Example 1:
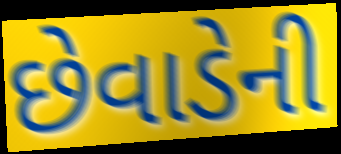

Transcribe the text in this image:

છેવાડેની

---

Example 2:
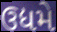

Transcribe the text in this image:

ઉદ્યમે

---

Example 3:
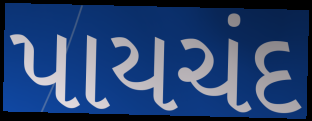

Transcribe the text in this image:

પાયચંદ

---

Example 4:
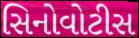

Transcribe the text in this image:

સિનોવોટીસ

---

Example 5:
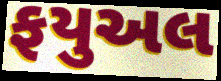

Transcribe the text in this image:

ફયુઅલ